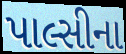
પાલ્સીના